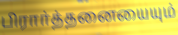
பிரார்த்தனையையும்